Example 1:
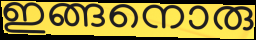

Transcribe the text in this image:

ഇങ്ങനൊരു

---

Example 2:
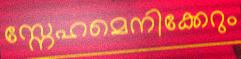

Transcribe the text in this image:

സ്നേഹമെനിക്കേറും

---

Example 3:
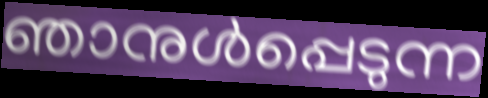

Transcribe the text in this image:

ഞാനുൾപ്പെടുന്ന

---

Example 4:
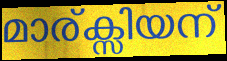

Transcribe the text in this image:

മാര്ക്സിയന്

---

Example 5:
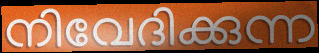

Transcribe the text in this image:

നിവേദിക്കുന്ന